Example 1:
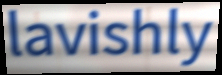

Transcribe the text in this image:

lavishly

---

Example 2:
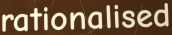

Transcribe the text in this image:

rationalised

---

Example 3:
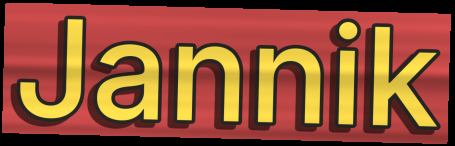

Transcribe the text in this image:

Jannik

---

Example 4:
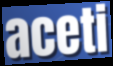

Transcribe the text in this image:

aceti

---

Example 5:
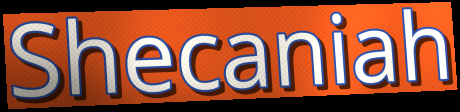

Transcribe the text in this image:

Shecaniah